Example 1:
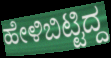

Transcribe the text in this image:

ಹೇಳಿಬಿಟ್ಟಿದ್ದ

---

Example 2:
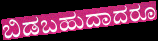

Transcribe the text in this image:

ಬಿಡಬಹುದಾದರೂ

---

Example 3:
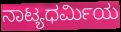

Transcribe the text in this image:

ನಾಟ್ಯಧರ್ಮಿಯ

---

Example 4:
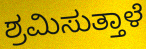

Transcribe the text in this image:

ಶ್ರಮಿಸುತ್ತಾಳೆ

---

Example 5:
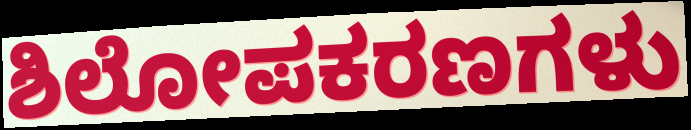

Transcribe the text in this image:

ಶಿಲೋಪಕರಣಗಳು